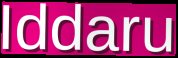
Iddaru